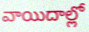
వాయిదాల్లో